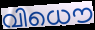
വിധൌ